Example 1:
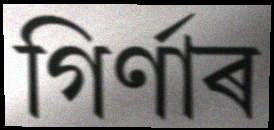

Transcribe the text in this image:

গিৰ্ণাৰ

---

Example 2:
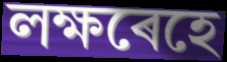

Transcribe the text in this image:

লক্ষৰেহে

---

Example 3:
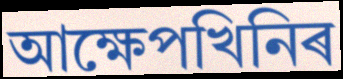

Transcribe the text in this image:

আক্ষেপখিনিৰ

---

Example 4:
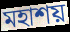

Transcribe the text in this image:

মহাশয়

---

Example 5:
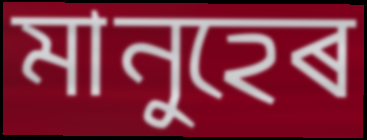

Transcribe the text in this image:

মানুহেৰ